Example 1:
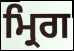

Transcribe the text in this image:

ਮ੍ਰਿਗ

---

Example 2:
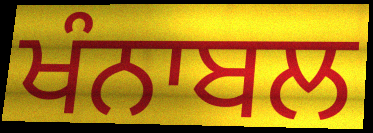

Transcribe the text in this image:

ਖੰਨਾਬਲ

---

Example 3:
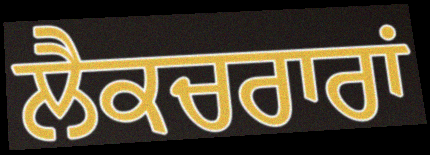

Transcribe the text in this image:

ਲੈਕਚਰਾਰਾਂ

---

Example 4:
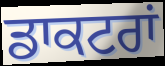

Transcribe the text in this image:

ਡਾਕਟਰਾਂ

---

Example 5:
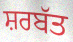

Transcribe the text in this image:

ਸ਼ਰਬੱਤ